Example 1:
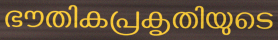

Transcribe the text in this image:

ഭൗതികപ്രകൃതിയുടെ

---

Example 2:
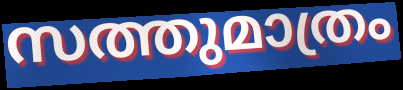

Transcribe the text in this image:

സത്തുമാത്രം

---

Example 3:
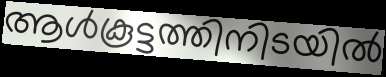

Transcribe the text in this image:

ആൾകൂട്ടത്തിനിടയിൽ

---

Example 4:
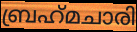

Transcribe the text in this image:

ബ്രഹ്‌മചാരി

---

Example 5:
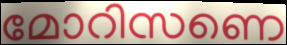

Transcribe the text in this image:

മോറിസണെ